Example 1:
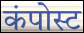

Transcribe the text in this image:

कंपोस्ट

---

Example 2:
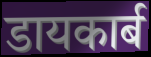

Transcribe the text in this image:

डायकार्ब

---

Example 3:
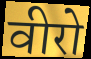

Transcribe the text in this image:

वीरो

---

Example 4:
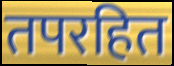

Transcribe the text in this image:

तपरहित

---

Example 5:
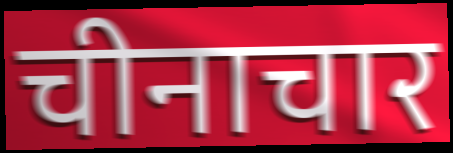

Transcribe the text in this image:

चीनाचार